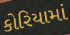
કોરિયામાં